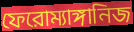
ফেরোম্যাঙ্গানিজ